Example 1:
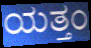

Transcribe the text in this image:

ಯತ್ತಂ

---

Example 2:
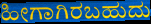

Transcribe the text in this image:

ಹೀಗಾಗಿರಬಹುದು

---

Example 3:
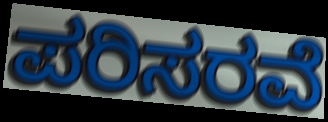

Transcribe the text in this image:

ಪರಿಸರವೆ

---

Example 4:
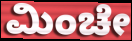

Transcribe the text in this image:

ಮಿಂಚೇ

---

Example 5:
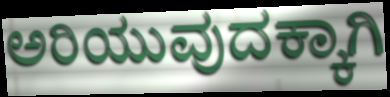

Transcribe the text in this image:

ಅರಿಯುವುದಕ್ಕಾಗಿ